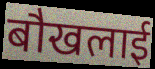
बौखलाई